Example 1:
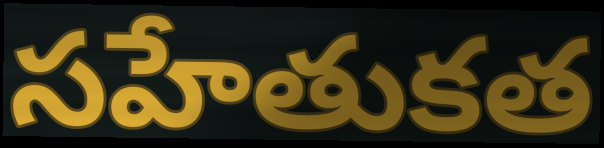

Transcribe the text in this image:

సహేతుకత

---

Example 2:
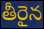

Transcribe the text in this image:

తీరైన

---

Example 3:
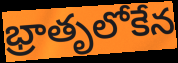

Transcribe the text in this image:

భ్రాతృలోకేన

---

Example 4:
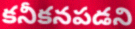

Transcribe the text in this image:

కనీకనపడని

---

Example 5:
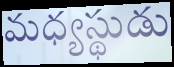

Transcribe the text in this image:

మధ్యస్థుడు